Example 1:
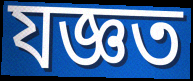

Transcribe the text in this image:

যজ্ঞত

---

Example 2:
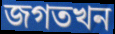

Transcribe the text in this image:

জগতখন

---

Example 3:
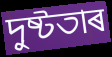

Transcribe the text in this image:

দুষ্টতাৰ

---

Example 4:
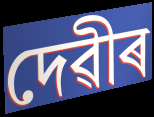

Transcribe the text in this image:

দেৱীৰ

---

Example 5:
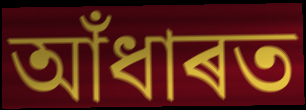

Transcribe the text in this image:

আঁধাৰত